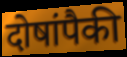
दोषांपैकी